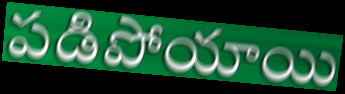
పడిపోయాయి